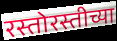
रस्तोरस्तीच्या